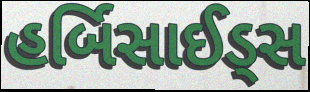
હર્બિસાઈડ્સ